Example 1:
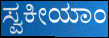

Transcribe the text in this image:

ಸ್ವಕೀಯಾಂ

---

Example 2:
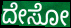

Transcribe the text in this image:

ದೇಸೋ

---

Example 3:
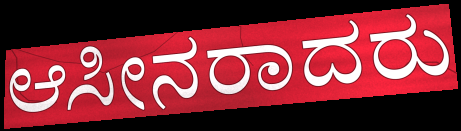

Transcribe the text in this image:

ಆಸೀನರಾದರು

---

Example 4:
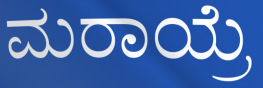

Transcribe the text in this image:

ಮರಾಯ್ರೆ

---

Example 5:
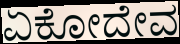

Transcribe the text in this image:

ಏಕೋದೇವ